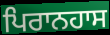
ਪਿਰਾਨਹਾਸ